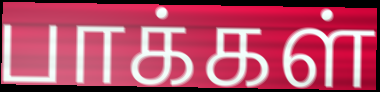
பாக்கள்